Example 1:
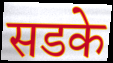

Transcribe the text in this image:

सडके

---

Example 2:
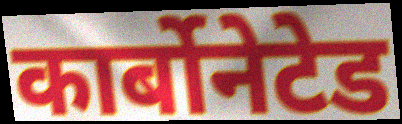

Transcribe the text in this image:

कार्बोनेटेड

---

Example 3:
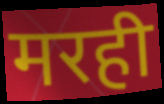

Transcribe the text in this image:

मरही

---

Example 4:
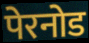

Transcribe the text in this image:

पेरनोड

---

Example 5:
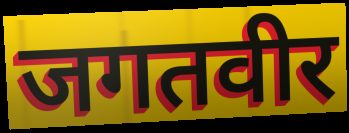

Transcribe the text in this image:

जगतवीर